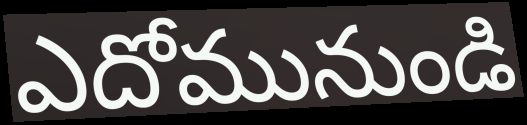
ఎదోమునుండి